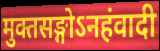
मुक्तसङ्गोऽनहंवादी